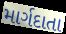
માર્ગદાતા